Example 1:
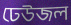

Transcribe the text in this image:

ঢেউজল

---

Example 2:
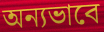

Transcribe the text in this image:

অন্যভাবে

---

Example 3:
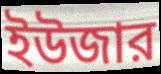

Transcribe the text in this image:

ইউজার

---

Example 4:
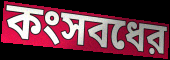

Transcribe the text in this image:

কংসবধের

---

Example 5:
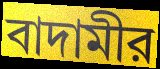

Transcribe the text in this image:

বাদামীর